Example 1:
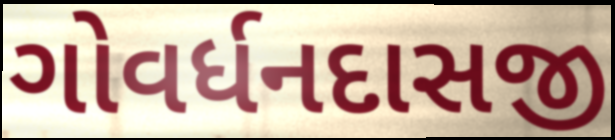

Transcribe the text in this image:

ગોવર્ધનદાસજી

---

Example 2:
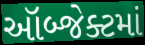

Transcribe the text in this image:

ઑબ્જેક્ટમાં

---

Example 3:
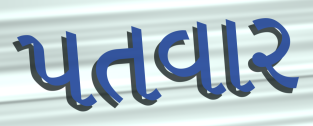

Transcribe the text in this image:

પતવાર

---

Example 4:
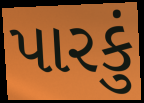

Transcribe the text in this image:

પારકું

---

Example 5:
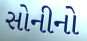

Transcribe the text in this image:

સોનીનો